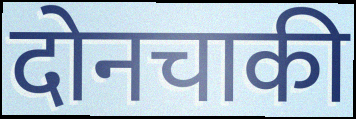
दोनचाकी